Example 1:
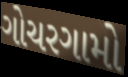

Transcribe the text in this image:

ગોચરગામો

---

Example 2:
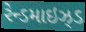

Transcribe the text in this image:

રેન્ડમાઇઝ્ડ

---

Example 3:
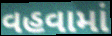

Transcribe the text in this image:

વહવામાં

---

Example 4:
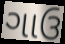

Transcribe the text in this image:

ગાઉ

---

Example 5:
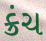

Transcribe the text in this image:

ક્રંચ